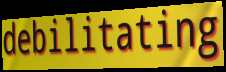
debilitating